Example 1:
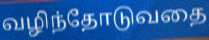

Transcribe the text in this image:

வழிந்தோடுவதை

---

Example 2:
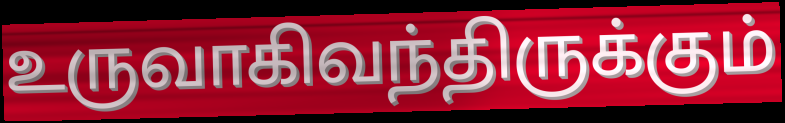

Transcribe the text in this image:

உருவாகிவந்திருக்கும்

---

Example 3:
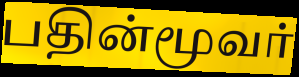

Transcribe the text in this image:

பதின்மூவர்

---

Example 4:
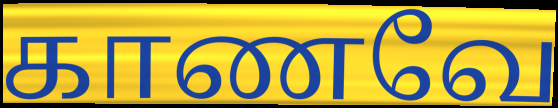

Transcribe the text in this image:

காணவே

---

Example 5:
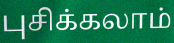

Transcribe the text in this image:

புசிக்கலாம்